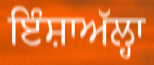
ਇੰਸ਼ਾਅੱਲ੍ਹਾ